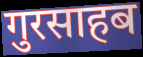
गुरसाहब